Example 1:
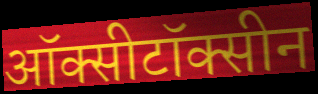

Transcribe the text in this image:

ऑक्सीटॉक्सीन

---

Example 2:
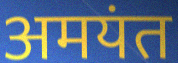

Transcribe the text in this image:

अमयंत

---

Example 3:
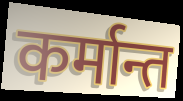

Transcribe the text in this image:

कर्मान्त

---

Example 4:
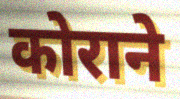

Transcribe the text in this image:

कोराने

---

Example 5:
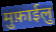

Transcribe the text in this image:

मुफ़ाईलु